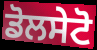
ਡੋਲਸੇਟੋ